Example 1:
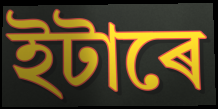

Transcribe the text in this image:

ইটাৰে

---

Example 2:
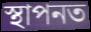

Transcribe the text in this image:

স্থাপনত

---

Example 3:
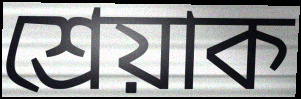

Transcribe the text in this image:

শ্ৰেয়াক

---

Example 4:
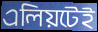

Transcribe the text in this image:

এলিয়টেই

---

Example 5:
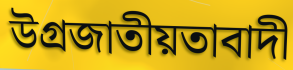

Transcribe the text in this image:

উগ্ৰজাতীয়তাবাদী